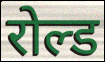
रोल्ड